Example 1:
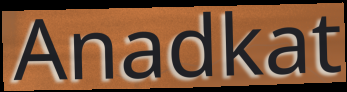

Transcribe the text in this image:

Anadkat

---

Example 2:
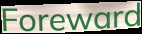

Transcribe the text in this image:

Foreward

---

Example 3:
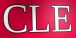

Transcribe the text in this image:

CLE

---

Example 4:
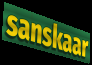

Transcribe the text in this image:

sanskaar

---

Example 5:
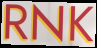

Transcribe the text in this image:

RNK